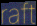
raft